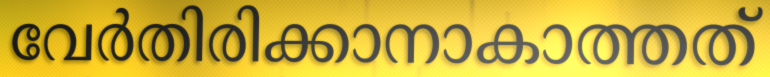
വേർതിരിക്കാനാകാത്തത്